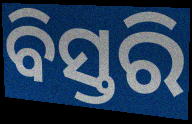
ବିସ୍ତରି